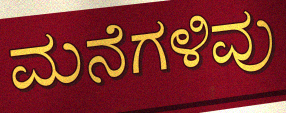
ಮನೆಗಳಿವು